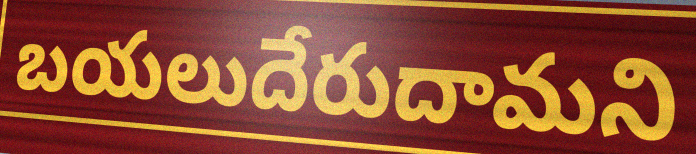
బయలుదేరుదామని